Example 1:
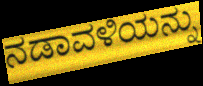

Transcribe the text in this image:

ನಡಾವಳಿಯನ್ನು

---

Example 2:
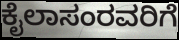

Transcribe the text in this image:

ಕೈಲಾಸಂರವರಿಗೆ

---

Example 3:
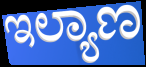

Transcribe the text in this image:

ಇಲ್ಯಾಣ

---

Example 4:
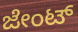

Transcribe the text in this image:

ಜೇಂಟ್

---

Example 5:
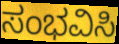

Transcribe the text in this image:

ಸಂಭವಿಸಿ